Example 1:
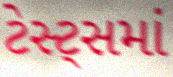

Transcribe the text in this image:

ટેસ્ટ્સમાં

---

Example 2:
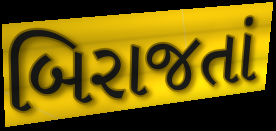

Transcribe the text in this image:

બિરાજતાં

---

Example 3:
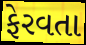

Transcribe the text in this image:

ફેરવતા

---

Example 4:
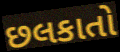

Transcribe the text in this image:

છલકાતો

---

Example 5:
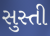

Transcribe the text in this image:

સુસ્તી